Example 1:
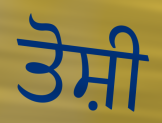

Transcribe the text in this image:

ਤੋਸ਼ੀ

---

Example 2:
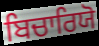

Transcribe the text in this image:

ਬਿਚਾਰਿਯੋ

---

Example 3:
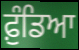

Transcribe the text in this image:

ਫ਼ੁੰਡਿਆ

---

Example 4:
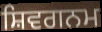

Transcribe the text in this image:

ਸ਼ਿਵਗਨਮ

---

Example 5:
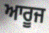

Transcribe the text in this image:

ਆਰੂਜ